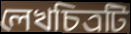
লেখচিত্রটি